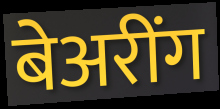
बेअरींग